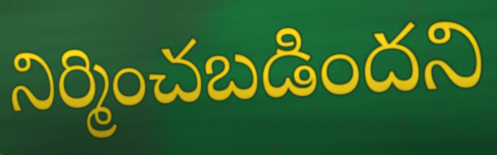
నిర్మించబడిందని